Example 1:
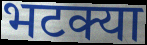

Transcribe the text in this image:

भटक्या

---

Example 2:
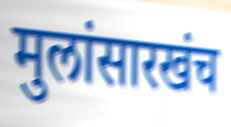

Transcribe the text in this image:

मुलांसारखंच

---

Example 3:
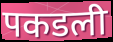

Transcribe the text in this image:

पकडली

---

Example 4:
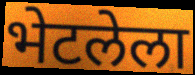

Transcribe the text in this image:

भेटलेला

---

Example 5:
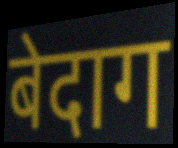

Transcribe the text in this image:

बेदाग